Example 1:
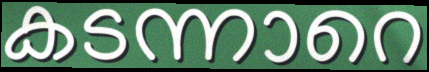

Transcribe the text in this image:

കടന്നാറെ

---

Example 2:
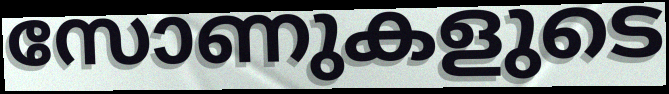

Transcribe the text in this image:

സോണുകളുടെ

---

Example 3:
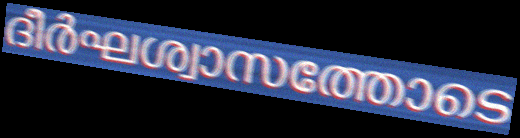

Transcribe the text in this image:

ദീർഘശ്വാസത്തോടെ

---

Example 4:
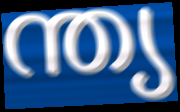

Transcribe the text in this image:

ന്ത്യ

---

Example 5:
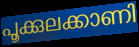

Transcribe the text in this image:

പൂക്കുലക്കാണി